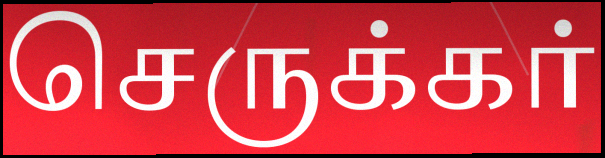
செருக்கர்